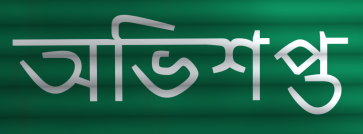
অভিশপ্ত